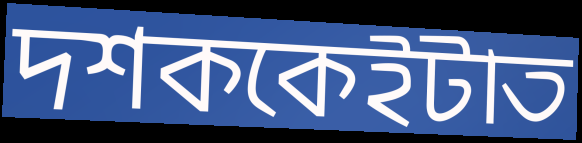
দশককেইটাত